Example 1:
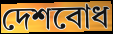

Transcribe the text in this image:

দেশবোধ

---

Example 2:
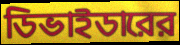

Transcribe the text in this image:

ডিভাইডারের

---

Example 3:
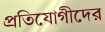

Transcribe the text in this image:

প্রতিযোগীদের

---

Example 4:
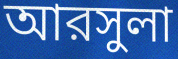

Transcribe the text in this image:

আরসুলা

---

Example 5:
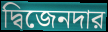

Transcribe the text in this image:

দ্বিজেনদার